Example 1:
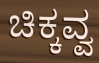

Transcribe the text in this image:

ಚಿಕ್ಕವ್ವ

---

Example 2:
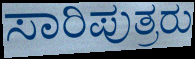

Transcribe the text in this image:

ಸಾರಿಪುತ್ರರು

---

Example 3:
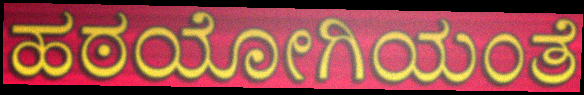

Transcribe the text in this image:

ಹಠಯೋಗಿಯಂತೆ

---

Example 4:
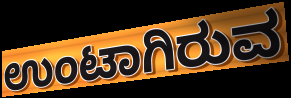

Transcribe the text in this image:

ಉಂಟಾಗಿರುವ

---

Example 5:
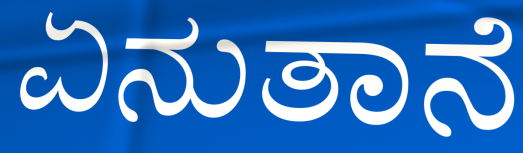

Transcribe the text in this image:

ಏನುತಾನೆ